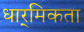
धार्मिकता